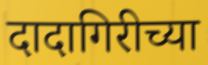
दादागिरीच्या